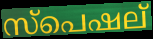
സ്പെഷല്